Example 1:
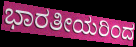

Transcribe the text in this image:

ಭಾರತೀಯರಿಂದ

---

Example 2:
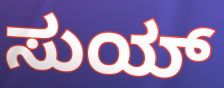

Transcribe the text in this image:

ಸುಯ್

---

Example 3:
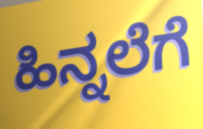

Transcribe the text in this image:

ಹಿನ್ನಲೆಗೆ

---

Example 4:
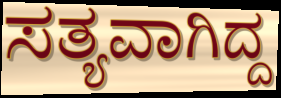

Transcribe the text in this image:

ಸತ್ಯವಾಗಿದ್ದ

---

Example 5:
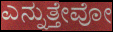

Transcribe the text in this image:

ಎನ್ನುತ್ತೇವೋ